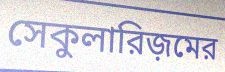
সেকুলারিজ়মের